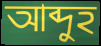
আব্দুহ